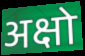
अक्षो